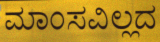
ಮಾಂಸವಿಲ್ಲದ